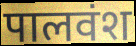
पालवंश